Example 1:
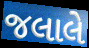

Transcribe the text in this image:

જલાલે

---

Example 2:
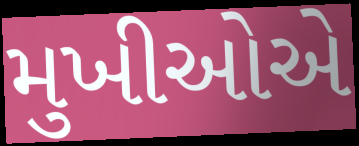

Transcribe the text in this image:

મુખીઓએ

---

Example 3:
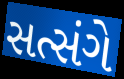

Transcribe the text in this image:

સત્સંગે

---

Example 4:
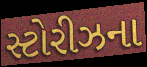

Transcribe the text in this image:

સ્ટોરીઝના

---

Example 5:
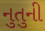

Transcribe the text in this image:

નુતુની